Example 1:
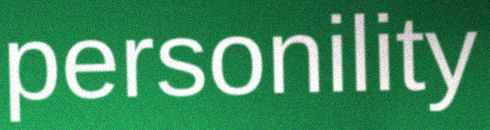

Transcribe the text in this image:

personility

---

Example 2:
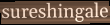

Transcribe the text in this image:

sureshingale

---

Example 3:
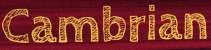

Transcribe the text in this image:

Cambrian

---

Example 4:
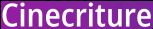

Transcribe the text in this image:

Cinecriture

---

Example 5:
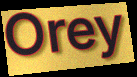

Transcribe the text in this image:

Orey